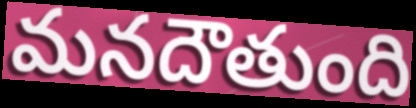
మనదౌతుంది